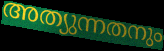
അത്യുന്നതനും